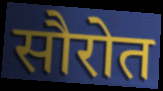
सौरोत